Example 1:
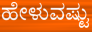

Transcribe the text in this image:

ಹೇಳುವಷ್ಟು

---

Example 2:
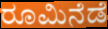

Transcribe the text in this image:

ರೂಮಿನೆಡೆ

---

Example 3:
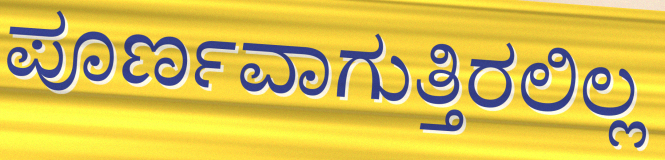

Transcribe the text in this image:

ಪೂರ್ಣವಾಗುತ್ತಿರಲಿಲ್ಲ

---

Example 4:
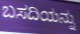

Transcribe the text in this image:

ಬಸದಿಯನ್ನು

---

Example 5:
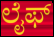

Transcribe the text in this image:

ಲೈಫ್